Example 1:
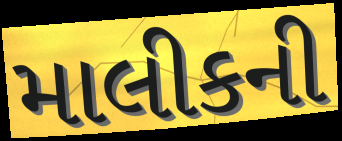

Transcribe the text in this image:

માલીકની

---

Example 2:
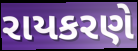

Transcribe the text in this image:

રાયકરણે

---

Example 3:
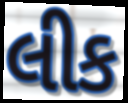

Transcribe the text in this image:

લીક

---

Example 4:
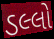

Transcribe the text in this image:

ડલ્લો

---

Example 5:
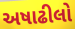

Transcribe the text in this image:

અષાઢીલો